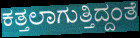
ಕತ್ತಲಾಗುತ್ತಿದ್ದಂತೆ